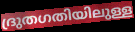
ദ്രുതഗതിയിലുള്ള